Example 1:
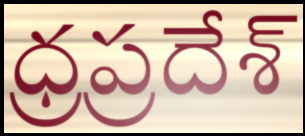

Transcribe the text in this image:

ధ్రప్రదేశ్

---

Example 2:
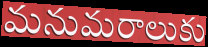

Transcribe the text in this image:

మనుమరాలుకు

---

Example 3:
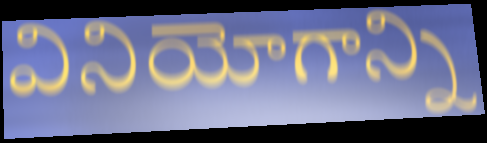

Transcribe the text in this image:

వినియోగాన్ని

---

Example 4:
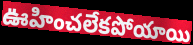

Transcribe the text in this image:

ఊహించలేకపోయాయి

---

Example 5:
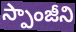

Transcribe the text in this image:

స్పాంజీని